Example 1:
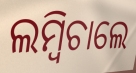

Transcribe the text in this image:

ଲମ୍ବିଚାଲେ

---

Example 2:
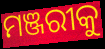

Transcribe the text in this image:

ମଞ୍ଜରୀକୁ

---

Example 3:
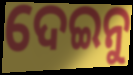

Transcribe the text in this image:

ଦେଇନୁ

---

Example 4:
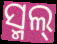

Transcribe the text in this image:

ସ୍ମଲ୍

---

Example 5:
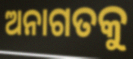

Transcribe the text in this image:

ଅନାଗତକୁ